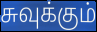
சுவுக்கும்